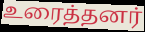
உரைத்தனர்